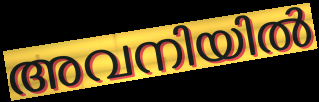
അവനിയിൽ